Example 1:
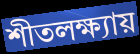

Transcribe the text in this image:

শীতলক্ষ্যায়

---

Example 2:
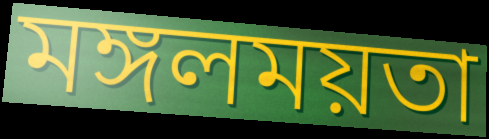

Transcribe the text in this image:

মঙ্গলময়তা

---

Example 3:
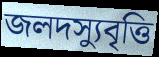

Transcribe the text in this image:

জলদস্যুবৃত্তি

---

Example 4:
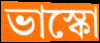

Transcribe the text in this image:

ভাস্কো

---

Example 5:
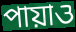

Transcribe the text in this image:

পায়াও